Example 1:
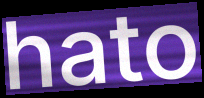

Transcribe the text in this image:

hato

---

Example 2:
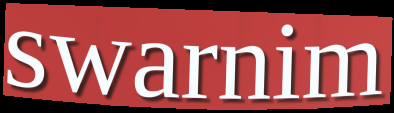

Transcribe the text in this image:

swarnim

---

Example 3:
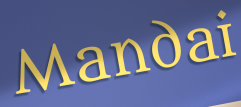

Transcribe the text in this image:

Mandai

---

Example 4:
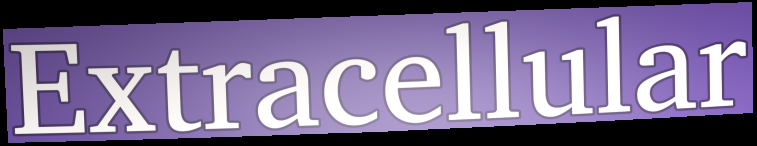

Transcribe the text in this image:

Extracellular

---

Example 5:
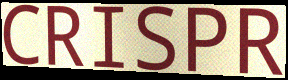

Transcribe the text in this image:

CRISPR